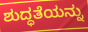
ಶುದ್ಧತೆಯನ್ನು